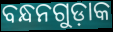
ବନ୍ଧନଗୁଡ଼ାକ